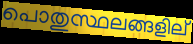
പൊതുസ്ഥലങ്ങളില്